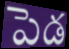
పెడ